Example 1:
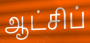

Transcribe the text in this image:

ஆட்சிப்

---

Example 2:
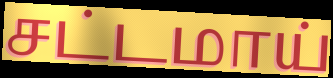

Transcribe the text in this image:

சட்டமாய்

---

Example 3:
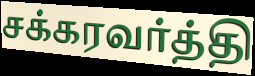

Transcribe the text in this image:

சக்கரவர்த்தி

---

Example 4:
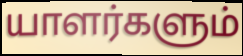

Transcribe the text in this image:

யாளர்களும்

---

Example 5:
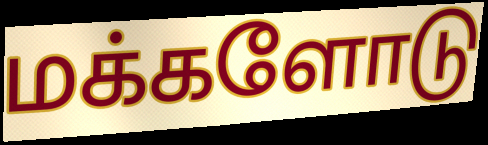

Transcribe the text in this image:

மக்களோடு